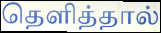
தெளித்தால்